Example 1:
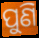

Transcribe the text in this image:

ପୁଣି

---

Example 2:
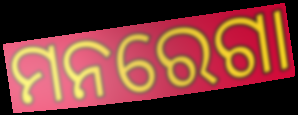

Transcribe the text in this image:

ମନରେଗା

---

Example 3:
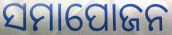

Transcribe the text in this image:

ସମାପୋଜନ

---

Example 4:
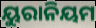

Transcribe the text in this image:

ୟୁରାନିୟମ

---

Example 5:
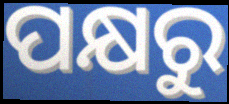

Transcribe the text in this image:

ପକ୍ଷରୁ